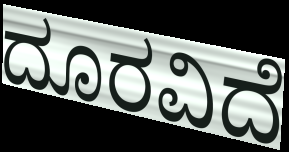
ದೂರವಿದೆ